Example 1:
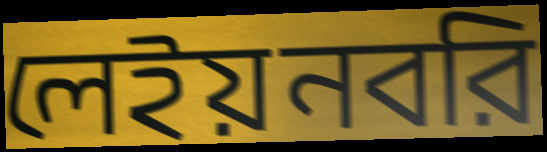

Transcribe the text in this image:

লেইয়নবরি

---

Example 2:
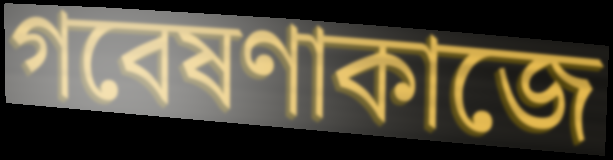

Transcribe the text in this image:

গবেষণাকাজে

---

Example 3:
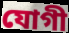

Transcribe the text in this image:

যোগী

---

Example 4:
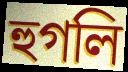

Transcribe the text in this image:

হুগলি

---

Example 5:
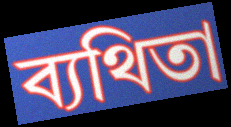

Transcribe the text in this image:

ব্যথিতা